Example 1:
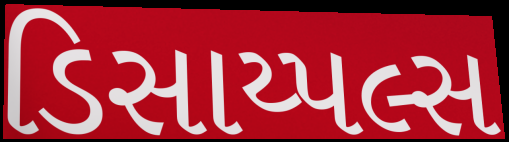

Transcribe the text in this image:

ડિસાય્પલ્સ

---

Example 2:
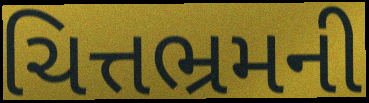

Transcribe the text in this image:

ચિત્તભ્રમની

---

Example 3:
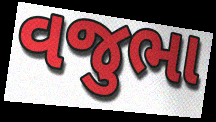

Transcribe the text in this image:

વજુભા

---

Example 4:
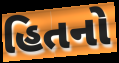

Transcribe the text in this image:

હિતનો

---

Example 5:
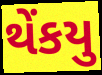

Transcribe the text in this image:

થેંકયુ